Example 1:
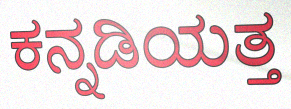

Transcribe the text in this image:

ಕನ್ನಡಿಯತ್ತ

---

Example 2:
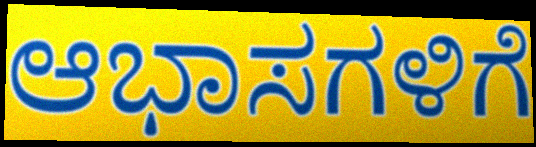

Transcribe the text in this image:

ಆಭಾಸಗಳಿಗೆ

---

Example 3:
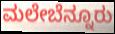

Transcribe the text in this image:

ಮಲೇಬೆನ್ನೂರು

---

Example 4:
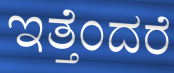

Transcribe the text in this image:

ಇತ್ತೆಂದರೆ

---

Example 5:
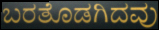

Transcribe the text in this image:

ಬರತೊಡಗಿದವು